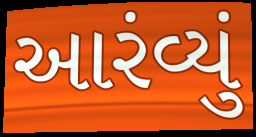
આરંવ્યું